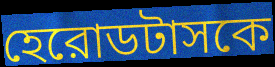
হেরোডটাসকে